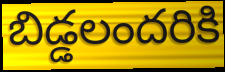
బిడ్డలందరికి